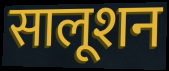
सालूशन